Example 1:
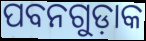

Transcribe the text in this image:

ପବନଗୁଡ଼ାକ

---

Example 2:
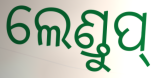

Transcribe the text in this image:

ଲେଣ୍ଡୁପ୍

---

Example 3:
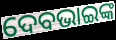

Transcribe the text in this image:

ଦେବଭାଇଙ୍କ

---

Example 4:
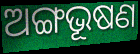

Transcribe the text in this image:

ଅଙ୍ଗଭୂଷଣ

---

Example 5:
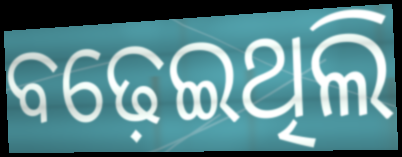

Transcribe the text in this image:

ବଢ଼େଇଥିଲି